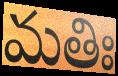
మతిః